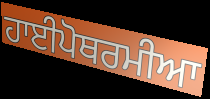
ਹਾਈਪੋਥਰਮੀਆ